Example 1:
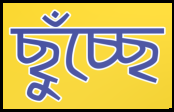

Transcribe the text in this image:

ছুঁচ্ছে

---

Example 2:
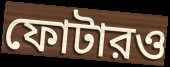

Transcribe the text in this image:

ফোটারও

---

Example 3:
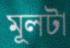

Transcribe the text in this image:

মূলটা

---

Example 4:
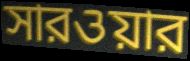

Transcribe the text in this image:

সারওয়ার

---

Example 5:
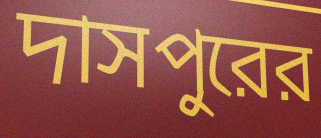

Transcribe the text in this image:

দাসপুরের